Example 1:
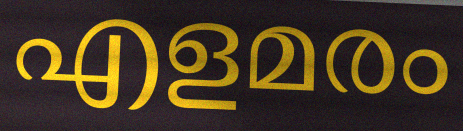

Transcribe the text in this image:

എളമരം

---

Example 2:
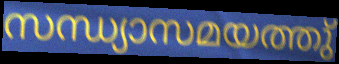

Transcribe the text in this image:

സന്ധ്യാസമയത്തു്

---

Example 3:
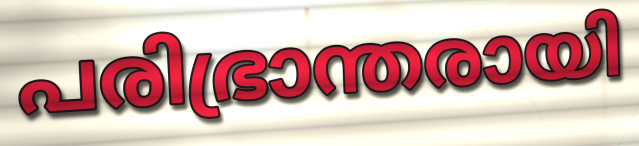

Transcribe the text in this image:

പരിഭ്രാന്തരായി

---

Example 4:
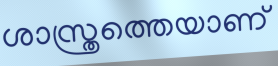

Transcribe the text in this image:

ശാസ്ത്രത്തെയാണ്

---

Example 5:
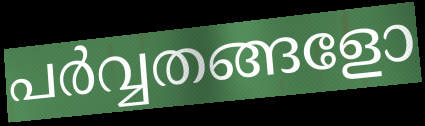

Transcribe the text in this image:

പർവ്വതങ്ങളോ